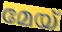
മേയ്